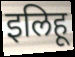
इलिहू